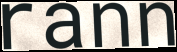
rann